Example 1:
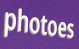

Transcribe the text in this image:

photoes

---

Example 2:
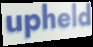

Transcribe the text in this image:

upheld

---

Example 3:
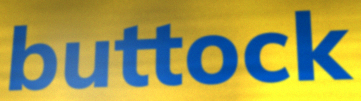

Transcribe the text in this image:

buttock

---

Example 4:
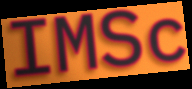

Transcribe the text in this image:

IMSc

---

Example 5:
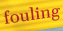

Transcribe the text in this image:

fouling